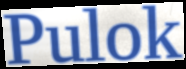
Pulok